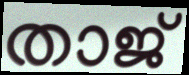
താജ്